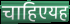
चाहिएयह